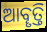
ଆବୄତ୍ତି